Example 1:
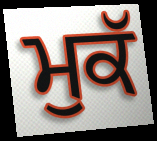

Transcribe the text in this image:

ਮੁਕੱ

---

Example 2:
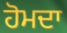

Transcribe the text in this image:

ਹੋਮਦਾ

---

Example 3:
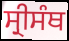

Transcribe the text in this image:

ਸ੍ਰੀਸੰਥ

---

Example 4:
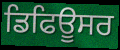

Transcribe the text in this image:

ਡਿਫਿਊਸਰ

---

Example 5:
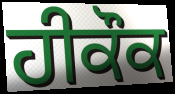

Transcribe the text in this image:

ਹੀਕੌਕ